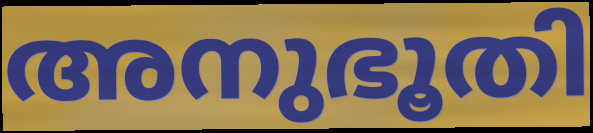
അനുഭൂതി